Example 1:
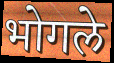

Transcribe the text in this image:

भोगले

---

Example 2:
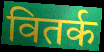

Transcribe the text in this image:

वितर्क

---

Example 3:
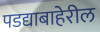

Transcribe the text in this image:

पडद्याबाहेरील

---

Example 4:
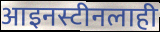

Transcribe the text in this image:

आइनस्टीनलाही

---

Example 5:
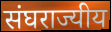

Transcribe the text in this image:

संघराज्यीय